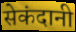
सेकंदानी